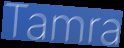
Tamra